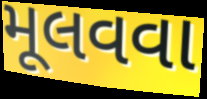
મૂલવવા